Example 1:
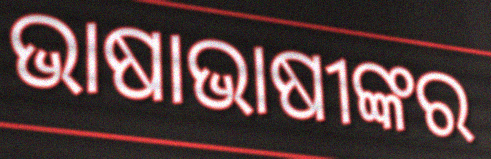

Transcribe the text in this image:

ଭାଷାଭାଷୀଙ୍କର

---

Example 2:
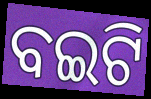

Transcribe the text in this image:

ବଇଟି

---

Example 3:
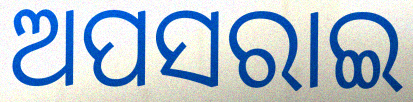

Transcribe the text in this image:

ଅପସରାଇ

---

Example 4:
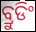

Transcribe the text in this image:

ବ୍ରୁଡିଂ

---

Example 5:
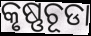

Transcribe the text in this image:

କୃଷ୍ଣଚୂଡା